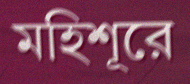
মহিশূরে